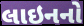
લાઇનનો